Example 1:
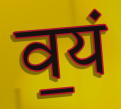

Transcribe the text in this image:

व॒यं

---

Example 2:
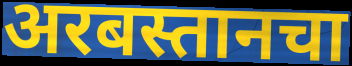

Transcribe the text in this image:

अरबस्तानचा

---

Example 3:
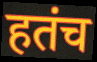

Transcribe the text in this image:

हतंच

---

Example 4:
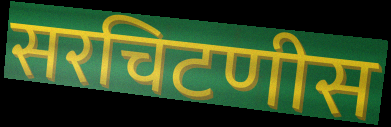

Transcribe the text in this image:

सरचिटणीस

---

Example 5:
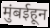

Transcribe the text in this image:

मुंबईहून